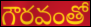
గౌరవంతో